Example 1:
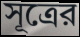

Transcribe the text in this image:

সূত্রের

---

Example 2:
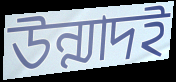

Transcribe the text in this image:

উন্মাদই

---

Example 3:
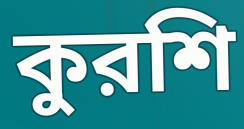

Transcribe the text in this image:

কুরশি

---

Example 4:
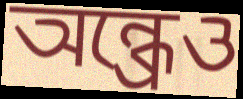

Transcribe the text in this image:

অন্ধ্রেও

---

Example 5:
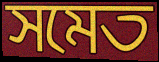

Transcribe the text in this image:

সমেত